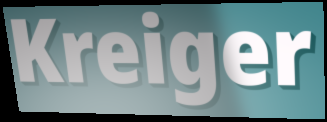
Kreiger